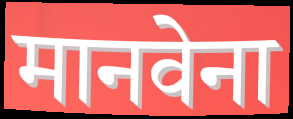
मानवेना